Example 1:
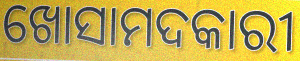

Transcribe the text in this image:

ଖୋସାମଦକାରୀ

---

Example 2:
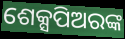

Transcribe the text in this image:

ଶେକ୍ସପିଅରଙ୍କ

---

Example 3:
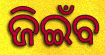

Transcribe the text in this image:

ଜିଇଁବ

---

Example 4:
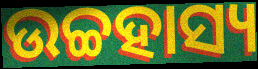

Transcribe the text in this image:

ଉଚ୍ଚହାସ୍ୟ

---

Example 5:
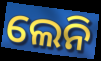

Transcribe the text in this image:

ଲେନି